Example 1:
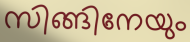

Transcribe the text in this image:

സിങ്ങിനേയും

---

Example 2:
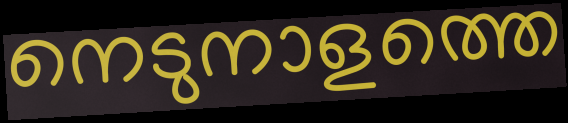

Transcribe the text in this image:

നെടുനാളത്തെ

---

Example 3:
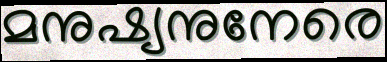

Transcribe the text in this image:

മനുഷ്യനുനേരെ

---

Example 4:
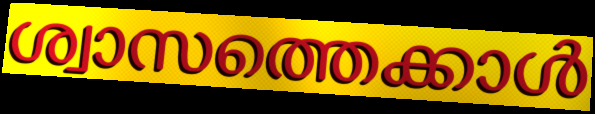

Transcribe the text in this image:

ശ്വാസത്തെക്കാൾ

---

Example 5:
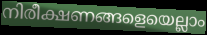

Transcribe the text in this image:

നിരീക്ഷണങ്ങളെയെല്ലാം